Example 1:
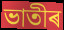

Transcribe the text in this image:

ভাতীৰ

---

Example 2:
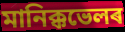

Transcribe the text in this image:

মানিক্কভেলৰ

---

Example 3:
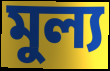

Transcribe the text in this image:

মুল্য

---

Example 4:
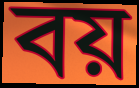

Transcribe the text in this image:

বয়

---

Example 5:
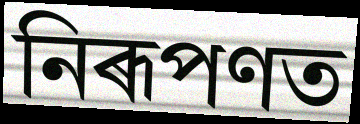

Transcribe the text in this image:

নিৰূপণত